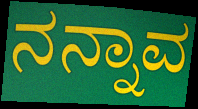
ನನ್ನಾವ